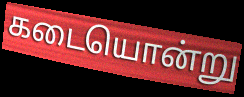
கடையொன்று